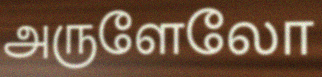
அருளேலோ